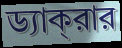
ড্যাক্‌রার